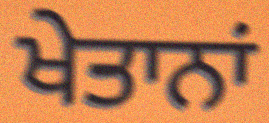
ਖੇਤਾਨਾਂ